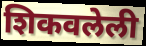
शिकवलेली